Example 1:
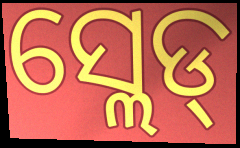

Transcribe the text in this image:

ସ୍ଲେଡ୍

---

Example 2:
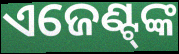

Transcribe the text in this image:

ଏଜେଣ୍ଟ୍‍ଙ୍କ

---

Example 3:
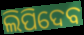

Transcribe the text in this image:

ଲିପିଦେବ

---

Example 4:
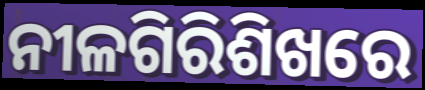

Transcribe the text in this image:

ନୀଳଗିରିଶିଖରେ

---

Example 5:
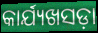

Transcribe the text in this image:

କାର୍ଯ୍ୟଖସଡ଼ା